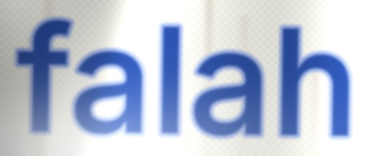
falah